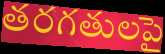
తరగతులపై